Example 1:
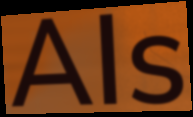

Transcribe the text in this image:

AIs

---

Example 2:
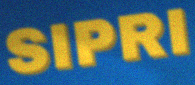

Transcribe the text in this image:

SIPRI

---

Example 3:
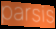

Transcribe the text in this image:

parsis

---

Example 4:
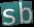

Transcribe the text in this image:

sb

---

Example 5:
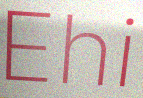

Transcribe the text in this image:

Ehi